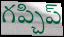
గప్చిప్